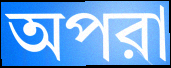
অপরা